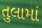
તુલામાં